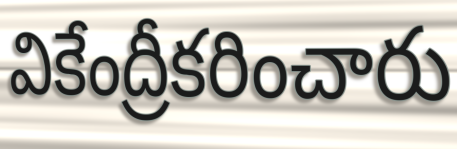
వికేంద్రీకరించారు